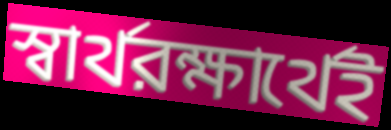
স্বার্থরক্ষার্থেই